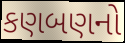
કણબણનો